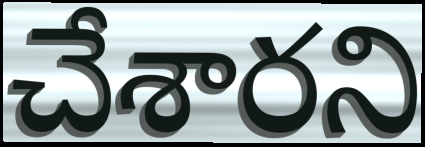
చేశారని